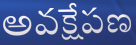
అవక్షేపణ